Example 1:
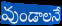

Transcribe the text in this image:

వుండాలనే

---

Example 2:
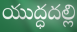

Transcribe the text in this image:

యుద్ధదల్లి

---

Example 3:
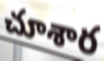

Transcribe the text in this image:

చూశార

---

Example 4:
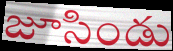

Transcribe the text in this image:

జూసిండు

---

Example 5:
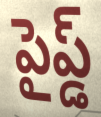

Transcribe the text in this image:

పైప్డ్